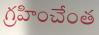
గ్రహించేంత